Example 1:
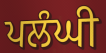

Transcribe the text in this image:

ਪਲੰਘੀ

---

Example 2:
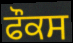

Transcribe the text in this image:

ਫੌਕਸ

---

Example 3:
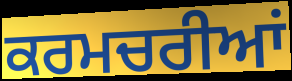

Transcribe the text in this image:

ਕਰਮਚਰੀਆਂ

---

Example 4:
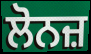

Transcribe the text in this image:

ਲੋਨਜ਼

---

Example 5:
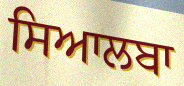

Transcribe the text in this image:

ਸਿਆਲਬਾ